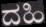
ದಹಿ